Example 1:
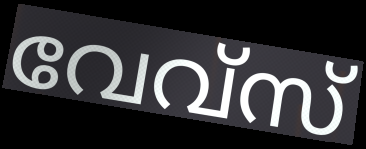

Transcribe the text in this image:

വേവ്സ്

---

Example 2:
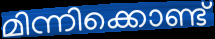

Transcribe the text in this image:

മിന്നിക്കൊണ്ട്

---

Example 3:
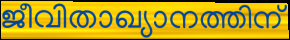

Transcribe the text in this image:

ജീവിതാഖ്യാനത്തിന്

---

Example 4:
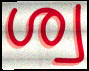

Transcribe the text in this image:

ശ്വ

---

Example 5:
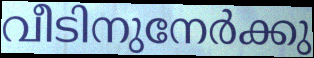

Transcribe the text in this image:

വീടിനുനേർക്കു